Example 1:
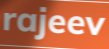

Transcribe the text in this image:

rajeev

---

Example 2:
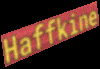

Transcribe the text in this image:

Haffkine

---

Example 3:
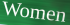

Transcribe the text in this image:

Women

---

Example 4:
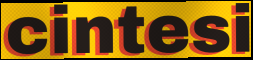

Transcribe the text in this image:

cintesi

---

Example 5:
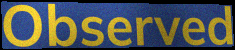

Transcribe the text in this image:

Observed